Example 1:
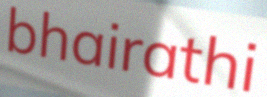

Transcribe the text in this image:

bhairathi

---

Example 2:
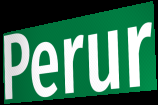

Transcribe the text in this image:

Perur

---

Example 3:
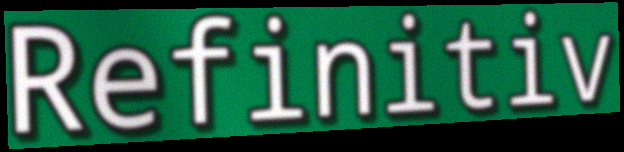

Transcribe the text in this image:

Refinitiv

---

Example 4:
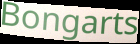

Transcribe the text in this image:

Bongarts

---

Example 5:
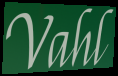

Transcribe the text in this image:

Vahl